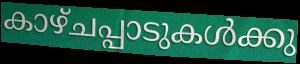
കാഴ്ചപ്പാടുകൾക്കു